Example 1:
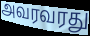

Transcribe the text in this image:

அவரவரது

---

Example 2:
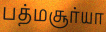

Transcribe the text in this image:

பத்மசூர்யா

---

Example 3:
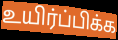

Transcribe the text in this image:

உயிர்ப்பிக்க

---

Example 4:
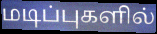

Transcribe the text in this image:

மடிப்புகளில்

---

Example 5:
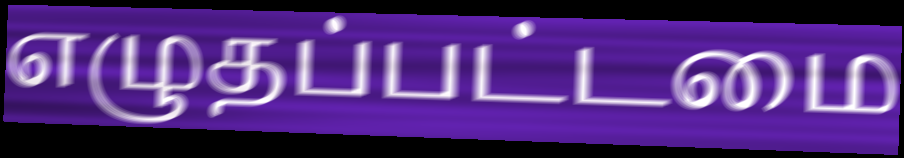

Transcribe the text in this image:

எழுதப்பட்டமை